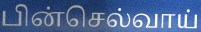
பின்செல்வாய்